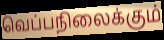
வெப்பநிலைக்கும்